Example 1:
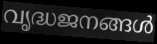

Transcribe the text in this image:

വൃദ്ധജനങ്ങൾ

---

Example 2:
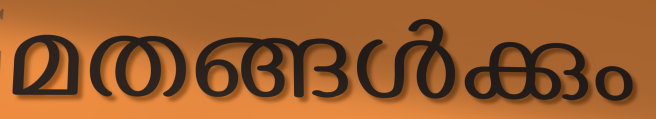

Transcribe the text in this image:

മതങ്ങൾക്കും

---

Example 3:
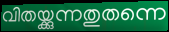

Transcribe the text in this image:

വിതയ്ക്കുന്നതുതന്നെ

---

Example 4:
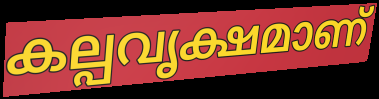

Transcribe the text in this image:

കല്പവൃക്ഷമാണ്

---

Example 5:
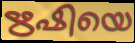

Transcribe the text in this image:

ഋഷിയെ